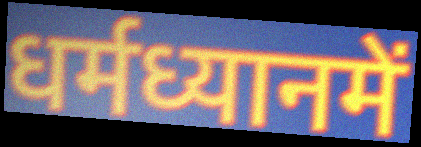
धर्मध्यानमें